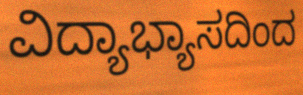
ವಿದ್ಯಾಭ್ಯಾಸದಿಂದ